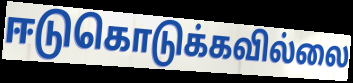
ஈடுகொடுக்கவில்லை